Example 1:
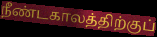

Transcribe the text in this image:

நீண்டகாலத்திற்குப்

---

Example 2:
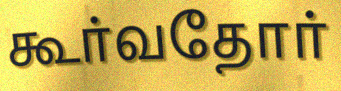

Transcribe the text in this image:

கூர்வதோர்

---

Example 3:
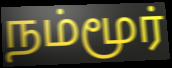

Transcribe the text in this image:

நம்மூர்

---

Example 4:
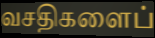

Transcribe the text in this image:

வசதிகளைப்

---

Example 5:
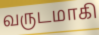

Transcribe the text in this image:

வருடமாகி